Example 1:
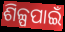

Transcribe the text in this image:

ଶିଳ୍ପପାଇଁ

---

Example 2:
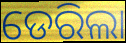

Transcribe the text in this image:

ଡେରିଲା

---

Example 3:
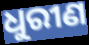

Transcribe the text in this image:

ଧୁରୀଣ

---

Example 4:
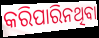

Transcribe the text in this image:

କରିପାରିନଥିବା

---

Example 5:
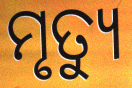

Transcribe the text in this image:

ମୃତ୍ୟୁ